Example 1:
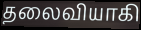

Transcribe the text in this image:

தலைவியாகி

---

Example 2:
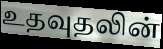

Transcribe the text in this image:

உதவுதலின்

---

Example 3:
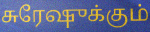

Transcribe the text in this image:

சுரேஷுக்கும்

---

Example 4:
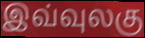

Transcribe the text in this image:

இவ்வுலகு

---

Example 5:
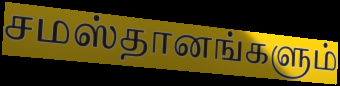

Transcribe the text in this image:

சமஸ்தானங்களும்